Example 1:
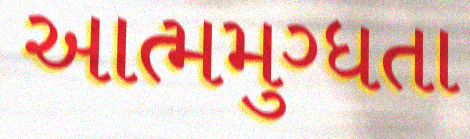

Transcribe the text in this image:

આત્મમુગ્ધતા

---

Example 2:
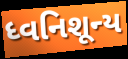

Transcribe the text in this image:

ધ્વનિશૂન્ય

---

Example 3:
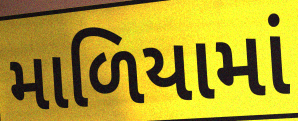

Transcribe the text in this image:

માળિયામાં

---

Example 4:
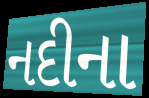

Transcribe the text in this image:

નદીના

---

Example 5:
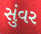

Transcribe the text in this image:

સુંવર